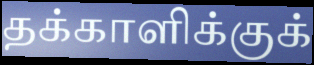
தக்காளிக்குக்